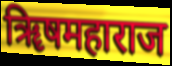
ॠिषमहाराज